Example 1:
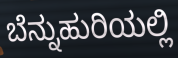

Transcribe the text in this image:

ಬೆನ್ನುಹುರಿಯಲ್ಲಿ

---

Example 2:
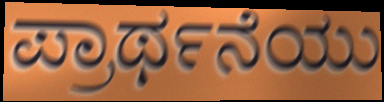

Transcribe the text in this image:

ಪ್ರಾರ್ಥನೆಯು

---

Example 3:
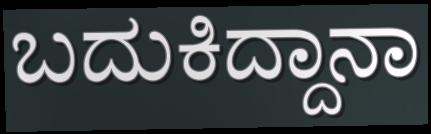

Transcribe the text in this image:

ಬದುಕಿದ್ದಾನಾ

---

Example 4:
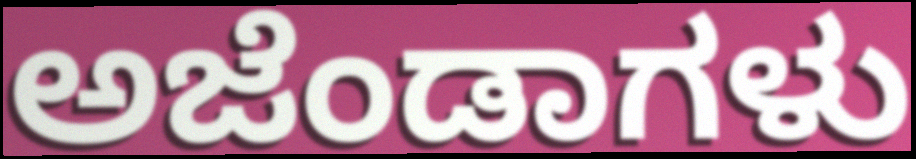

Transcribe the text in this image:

ಅಜೆಂಡಾಗಳು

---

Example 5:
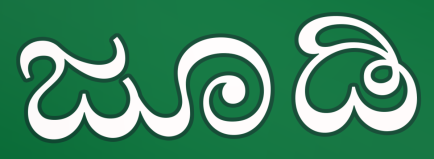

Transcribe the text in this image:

ಜೂಡಿ